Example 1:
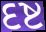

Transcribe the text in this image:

દષ્ટ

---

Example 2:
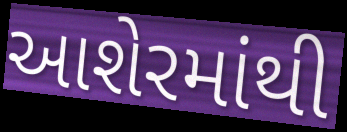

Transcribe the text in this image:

આશેરમાંથી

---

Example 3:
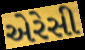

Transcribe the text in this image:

એરેસી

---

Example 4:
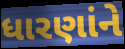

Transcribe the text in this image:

ધારણાંને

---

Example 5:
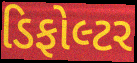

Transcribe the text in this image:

ડિફોલ્ટર